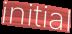
initial